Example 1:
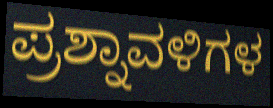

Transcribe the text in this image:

ಪ್ರಶ್ನಾವಳಿಗಳ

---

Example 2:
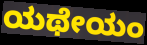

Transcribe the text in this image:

ಯಥೇಯಂ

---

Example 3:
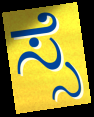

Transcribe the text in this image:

ಸ್ಸೆ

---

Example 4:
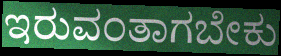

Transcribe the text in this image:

ಇರುವಂತಾಗಬೇಕು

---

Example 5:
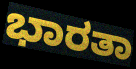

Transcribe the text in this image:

ಭಾರತಾ